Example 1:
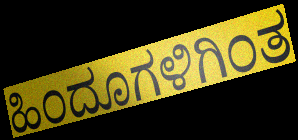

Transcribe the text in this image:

ಹಿಂದೂಗಳಿಗಿಂತ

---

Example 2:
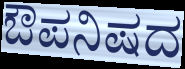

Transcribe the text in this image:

ಔಪನಿಷದ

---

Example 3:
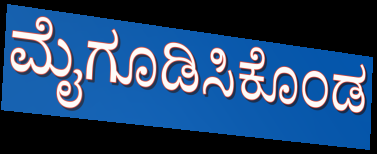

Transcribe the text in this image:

ಮೈಗೂಡಿಸಿಕೊಂಡ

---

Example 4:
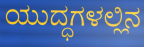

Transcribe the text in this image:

ಯುದ್ಧಗಳಲ್ಲಿನ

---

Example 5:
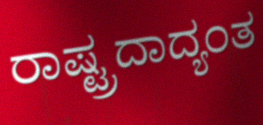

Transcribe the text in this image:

ರಾಷ್ಟ್ರದಾದ್ಯಂತ